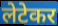
लेटेकर